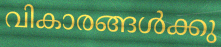
വികാരങ്ങൾക്കു